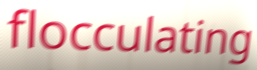
flocculating